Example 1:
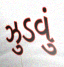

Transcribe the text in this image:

ઝુડવું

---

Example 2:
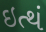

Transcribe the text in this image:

ઇત્થં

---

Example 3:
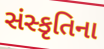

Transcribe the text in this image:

સંસ્કૃતિના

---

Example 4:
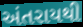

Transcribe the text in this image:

અંતરાયથી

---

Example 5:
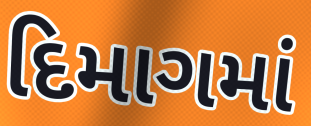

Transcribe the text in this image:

દિમાગમાં